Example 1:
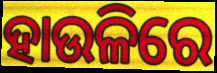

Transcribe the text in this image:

ହାଉଳିରେ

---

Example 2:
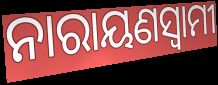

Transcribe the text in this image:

ନାରାୟଣସ୍ଵାମୀ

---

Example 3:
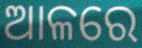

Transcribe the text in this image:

ଆଳରେ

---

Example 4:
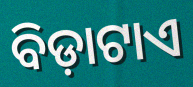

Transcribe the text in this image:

ବିଡ଼ାଟାଏ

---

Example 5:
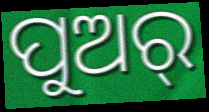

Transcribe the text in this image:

ପୁଅର୍